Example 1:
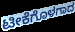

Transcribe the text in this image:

ಟೀಕೆಗೊಳಗಾದ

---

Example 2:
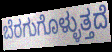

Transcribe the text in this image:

ಬೆರಗುಗೊಳ್ಳುತ್ತದೆ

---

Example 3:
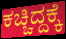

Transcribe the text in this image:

ಕಚ್ಚಿದ್ದಕ್ಕೆ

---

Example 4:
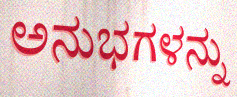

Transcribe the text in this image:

ಅನುಭಗಳನ್ನು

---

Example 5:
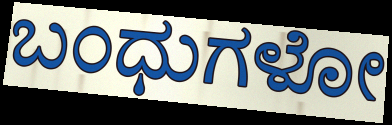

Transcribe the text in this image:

ಬಂಧುಗಳೋ